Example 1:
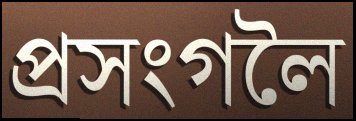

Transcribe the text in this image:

প্ৰসংগলৈ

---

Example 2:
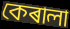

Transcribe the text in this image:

কেৰালা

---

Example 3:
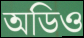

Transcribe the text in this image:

অডিও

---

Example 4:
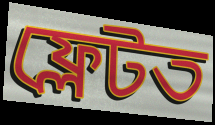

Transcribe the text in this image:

ফ্লেটত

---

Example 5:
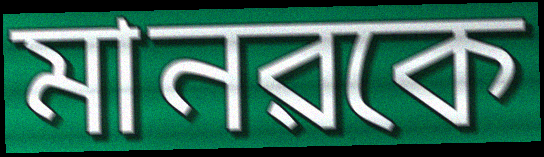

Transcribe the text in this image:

মানৱকে